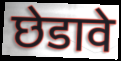
छेडावे